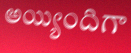
అయ్యిందిగా